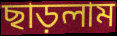
ছাড়লাম